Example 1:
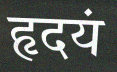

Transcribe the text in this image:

हृदयं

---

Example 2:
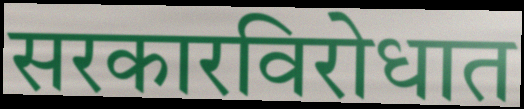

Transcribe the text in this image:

सरकारविरोधात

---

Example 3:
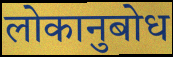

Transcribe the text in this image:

लोकानुबोध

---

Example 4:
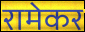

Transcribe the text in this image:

रामेकर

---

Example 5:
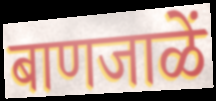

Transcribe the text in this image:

बाणजाळें